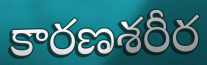
కారణశరీర